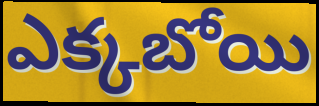
ఎక్కబోయి